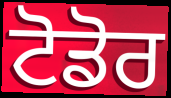
ਟੋਡੋਰ